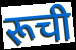
रूची